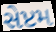
સેપ્ટમ